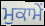
ਮੁਕਾਮੇਂ